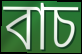
বাচ